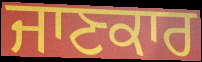
ਜਾਣਕਾਰ